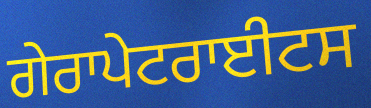
ਗੇਰਾਪੇਟਰਾਈਟਸ